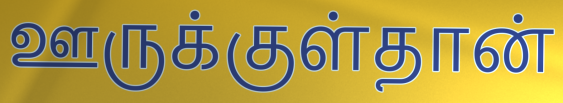
ஊருக்குள்தான்